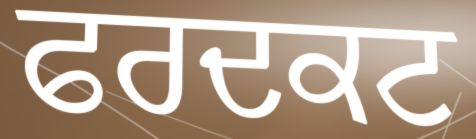
ਫਰਦਕਟ